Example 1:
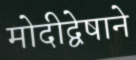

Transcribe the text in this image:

मोदीद्वेषाने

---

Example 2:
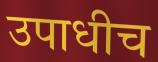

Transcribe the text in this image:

उपाधीच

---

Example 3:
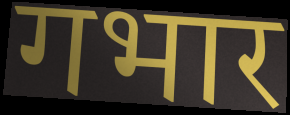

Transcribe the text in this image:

गभार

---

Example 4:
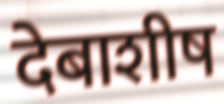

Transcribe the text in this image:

देबाशीष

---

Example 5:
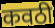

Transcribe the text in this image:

कवठी